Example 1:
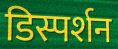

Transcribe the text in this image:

डिस्पर्शन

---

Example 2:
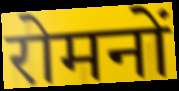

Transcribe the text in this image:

रोमनों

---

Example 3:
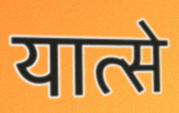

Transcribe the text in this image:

यात्से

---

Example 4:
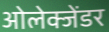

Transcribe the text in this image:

ओलेक्जेंडर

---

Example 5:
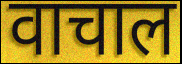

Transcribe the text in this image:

वाचाल